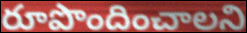
రూపొందించాలని